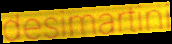
desimartini